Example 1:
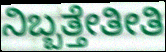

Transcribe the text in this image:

ನಿಬ್ಬತ್ತೇತೀತಿ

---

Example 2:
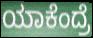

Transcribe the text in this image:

ಯಾಕೆಂದ್ರೆ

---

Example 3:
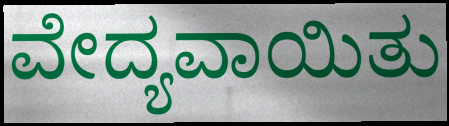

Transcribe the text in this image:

ವೇದ್ಯವಾಯಿತು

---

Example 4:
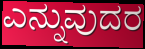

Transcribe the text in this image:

ಎನ್ನುವುದರ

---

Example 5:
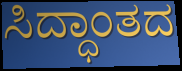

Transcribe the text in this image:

ಸಿದ್ಧಾಂತದ